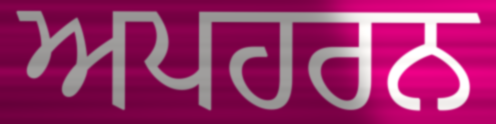
ਅਪਹਰਨ